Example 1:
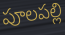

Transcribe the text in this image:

పూలపల్లి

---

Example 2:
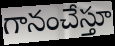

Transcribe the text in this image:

గానంచేస్తూ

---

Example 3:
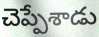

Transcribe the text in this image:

చెప్పేశాడు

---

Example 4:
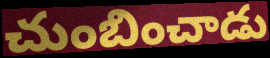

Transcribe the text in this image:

చుంబించాడు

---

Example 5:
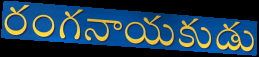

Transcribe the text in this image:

రంగనాయకుడు